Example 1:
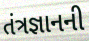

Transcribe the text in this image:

તંત્રજ્ઞાનની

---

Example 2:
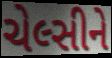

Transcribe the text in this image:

ચેલ્સીને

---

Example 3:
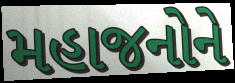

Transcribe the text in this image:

મહાજનોને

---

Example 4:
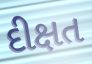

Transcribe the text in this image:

દીક્ષત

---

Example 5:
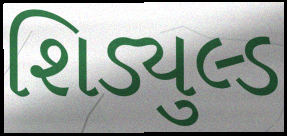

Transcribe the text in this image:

શિડ્યુલ્ડ